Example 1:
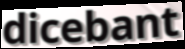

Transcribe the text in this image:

dicebant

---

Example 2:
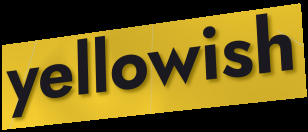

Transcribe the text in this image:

yellowish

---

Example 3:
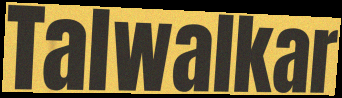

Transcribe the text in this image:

Talwalkar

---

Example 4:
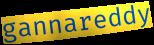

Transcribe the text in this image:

gannareddy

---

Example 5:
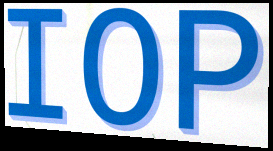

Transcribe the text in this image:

IOP